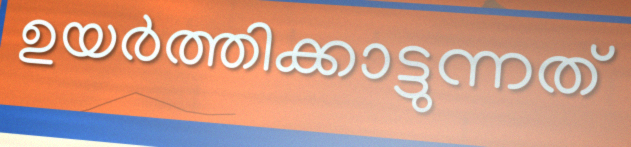
ഉയർത്തിക്കാട്ടുന്നത്